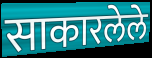
साकारलेले